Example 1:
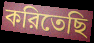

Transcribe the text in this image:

করিতেছি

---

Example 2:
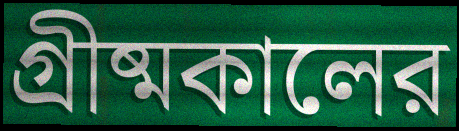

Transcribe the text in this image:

গ্রীষ্মকালের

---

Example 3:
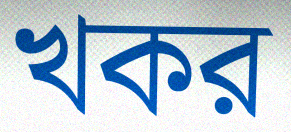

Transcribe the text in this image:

খকর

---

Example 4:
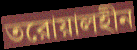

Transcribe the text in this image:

তরোয়ালহীন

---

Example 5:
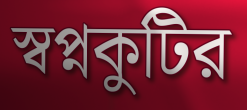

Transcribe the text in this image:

স্বপ্নকুটির